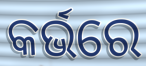
କର୍ଭରେ